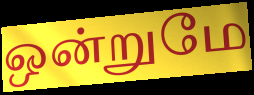
ஒன்றுமே